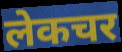
लेकचर